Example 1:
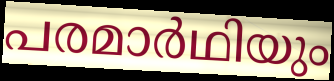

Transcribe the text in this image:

പരമാർഥിയും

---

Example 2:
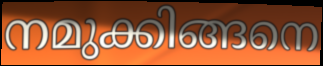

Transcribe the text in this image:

നമുക്കിങ്ങനെ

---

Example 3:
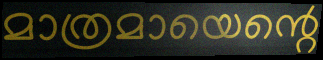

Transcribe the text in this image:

മാത്രമായെന്റെ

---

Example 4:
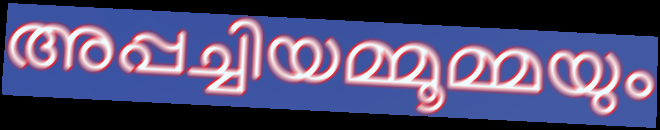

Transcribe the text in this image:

അപ്പച്ചിയമ്മൂമ്മയും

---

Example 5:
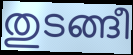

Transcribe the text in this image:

തുടങ്ങീ